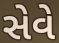
સેવે